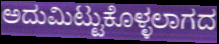
ಅದುಮಿಟ್ಟುಕೊಳ್ಳಲಾಗದ